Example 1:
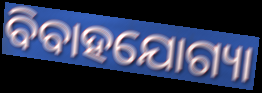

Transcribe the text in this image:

ବିବାହଯୋଗ୍ୟା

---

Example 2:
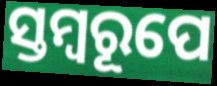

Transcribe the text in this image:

ସ୍ତମ୍ବରୂପେ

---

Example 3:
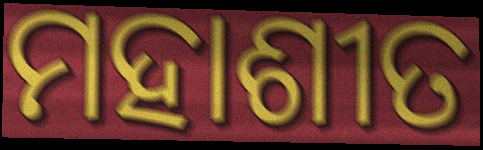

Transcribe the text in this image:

ମହାଶୀତ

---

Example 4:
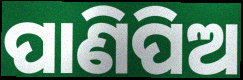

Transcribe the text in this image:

ପାଣିପିଅ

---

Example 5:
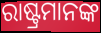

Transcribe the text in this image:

ରାଷ୍ଟ୍ରମାନଙ୍କ